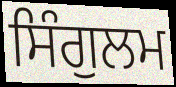
ਸਿੰਗੁਲਮ